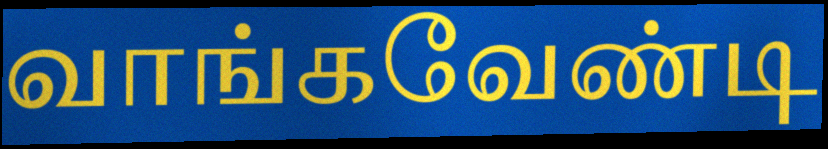
வாங்கவேண்டி